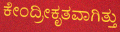
ಕೇಂದ್ರೀಕೃತವಾಗಿತ್ತು